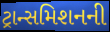
ટ્રાન્સમિશનની